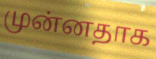
முன்னதாக